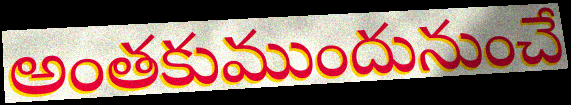
అంతకుముందునుంచే